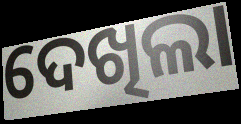
ଦେଖିଲା